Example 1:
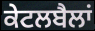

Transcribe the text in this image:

ਕੇਟਲਬੈਲਾਂ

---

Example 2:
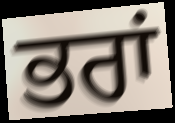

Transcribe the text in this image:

ਭਰਾਂ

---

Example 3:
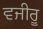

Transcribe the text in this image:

ਵਜੀਰੂ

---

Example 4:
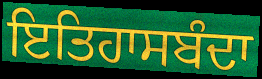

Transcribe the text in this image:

ਇਤਿਹਾਸਬੰਦਾ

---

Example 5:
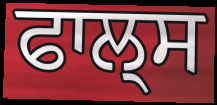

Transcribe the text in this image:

ਫਾਲ੍ਸ